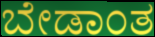
ಬೇಡಾಂತ